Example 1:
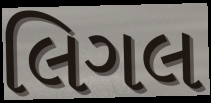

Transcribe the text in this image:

લિગલ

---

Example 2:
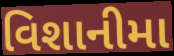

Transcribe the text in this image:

વિશાનીમા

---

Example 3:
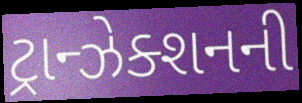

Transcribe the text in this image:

ટ્રાન્ઝેક્શનની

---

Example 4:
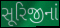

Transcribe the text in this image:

સૂરિજીનાં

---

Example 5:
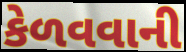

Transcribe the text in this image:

કેળવવાની